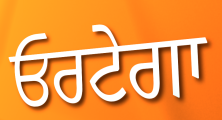
ਓਰਟੇਗਾ